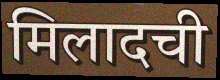
मिलादची